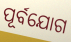
ପୂର୍ବଯୋଗ